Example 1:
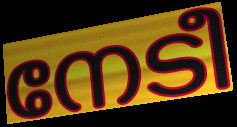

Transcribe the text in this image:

നേടീ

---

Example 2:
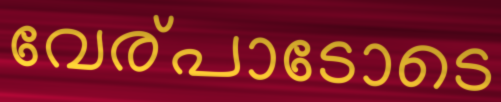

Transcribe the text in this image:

വേര്പാടോടെ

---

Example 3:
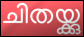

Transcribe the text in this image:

ചിതയ്ക്കു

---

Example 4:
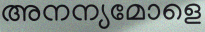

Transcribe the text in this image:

അനന്യമോളെ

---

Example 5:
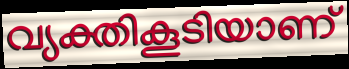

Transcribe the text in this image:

വ്യക്തികൂടിയാണ്